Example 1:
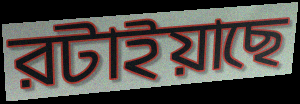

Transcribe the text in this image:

রটাইয়াছে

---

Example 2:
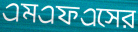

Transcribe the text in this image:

এমএফএসের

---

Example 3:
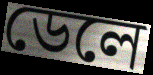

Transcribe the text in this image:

ডেলে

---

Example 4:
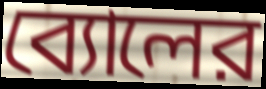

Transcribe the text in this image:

ব্যোলের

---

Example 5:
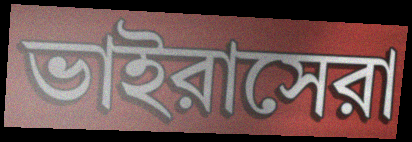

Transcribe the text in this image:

ভাইরাসেরা